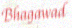
Bhagawad